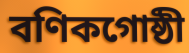
বণিকগোষ্ঠী